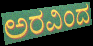
ಅರವಿಂದ